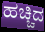
ಹಚ್ಚಿದ